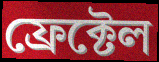
ফ্ৰেক্টেল